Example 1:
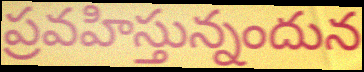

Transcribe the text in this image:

ప్రవహిస్తున్నందున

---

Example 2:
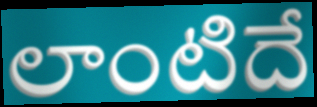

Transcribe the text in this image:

లాంటిదే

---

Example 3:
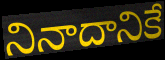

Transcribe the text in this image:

నినాదానికే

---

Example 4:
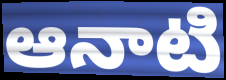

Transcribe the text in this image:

ఆనాటి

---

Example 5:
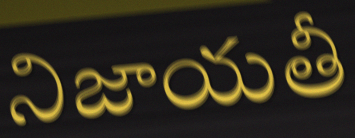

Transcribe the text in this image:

నిజాయతీ